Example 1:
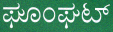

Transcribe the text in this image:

ಘೂಂಘಟ್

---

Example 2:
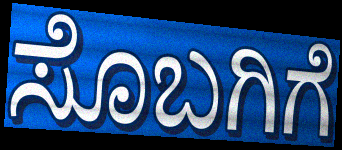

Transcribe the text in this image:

ಸೊಬಗಿಗೆ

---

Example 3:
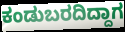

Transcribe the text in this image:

ಕಂಡುಬರದಿದ್ದಾಗ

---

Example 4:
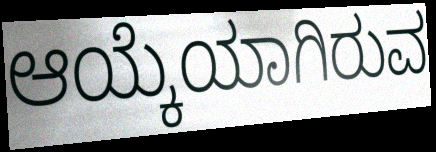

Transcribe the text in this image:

ಆಯ್ಕೆಯಾಗಿರುವ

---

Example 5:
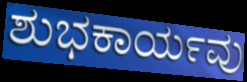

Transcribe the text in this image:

ಶುಭಕಾರ್ಯವು